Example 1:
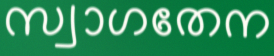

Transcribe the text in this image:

സ്വാഗതേന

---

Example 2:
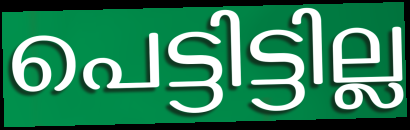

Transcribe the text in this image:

പെട്ടിട്ടില്ല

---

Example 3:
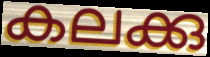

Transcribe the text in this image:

കലക്കു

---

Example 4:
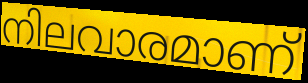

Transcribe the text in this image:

നിലവാരമാണ്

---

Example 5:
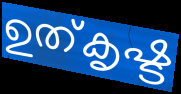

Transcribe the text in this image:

ഉത്കൃഷ്ട